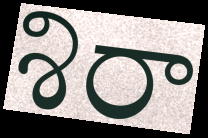
శిరా